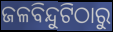
ଜଳବିନ୍ଦୁଟିଠାରୁ